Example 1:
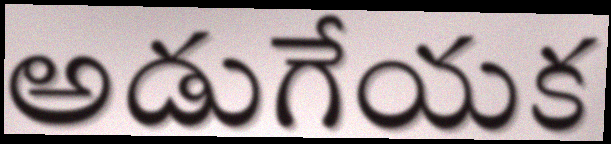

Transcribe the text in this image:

అడుగేయక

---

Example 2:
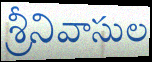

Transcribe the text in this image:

శ్రీనివాసుల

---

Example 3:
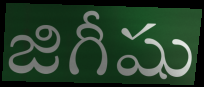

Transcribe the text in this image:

జిగీషు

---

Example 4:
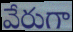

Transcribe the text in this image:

వేరుగా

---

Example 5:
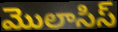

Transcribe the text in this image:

మొలాసిస్